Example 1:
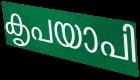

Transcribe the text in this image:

കൃപയാപി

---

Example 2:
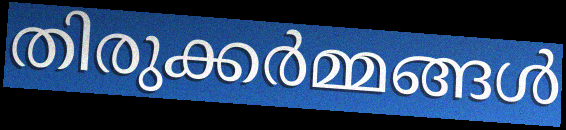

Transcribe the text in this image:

തിരുക്കർമ്മങ്ങൾ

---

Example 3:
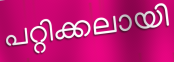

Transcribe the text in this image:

പറ്റിക്കലായി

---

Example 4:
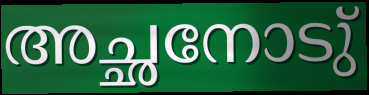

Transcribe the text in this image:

അച്ഛനോടു്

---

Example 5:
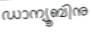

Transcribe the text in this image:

ഡാന്യൂബിനു